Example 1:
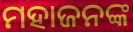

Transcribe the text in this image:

ମହାଜନଙ୍କ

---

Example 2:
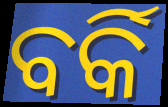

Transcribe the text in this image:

ବର୍କି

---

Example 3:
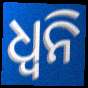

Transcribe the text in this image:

ଧ୍ବନି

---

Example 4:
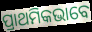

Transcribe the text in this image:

ପ୍ରାଥମିକଭାବେ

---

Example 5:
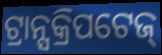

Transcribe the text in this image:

ଟ୍ରାନ୍ସକ୍ରିପଟେଜ୍